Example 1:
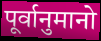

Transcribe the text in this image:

पूर्वानुमानो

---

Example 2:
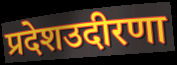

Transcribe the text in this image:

प्रदेशउदीरणा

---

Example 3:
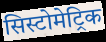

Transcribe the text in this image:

सिस्टोमेट्रिक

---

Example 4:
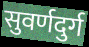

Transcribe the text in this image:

सुवर्णदुर्ग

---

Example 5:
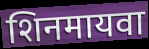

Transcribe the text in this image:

शिनमायवा